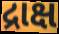
દ્રાક્ષ